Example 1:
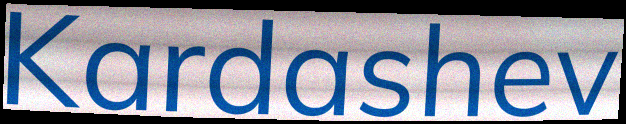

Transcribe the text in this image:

Kardashev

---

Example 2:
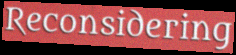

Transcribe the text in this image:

Reconsidering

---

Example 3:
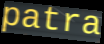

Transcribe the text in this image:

patra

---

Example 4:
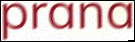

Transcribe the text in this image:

prana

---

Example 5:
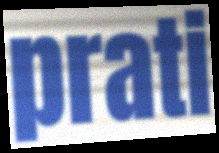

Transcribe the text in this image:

prati